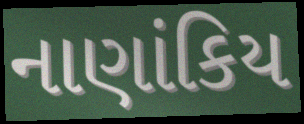
નાણાંકિય